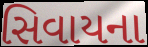
સિવાયના